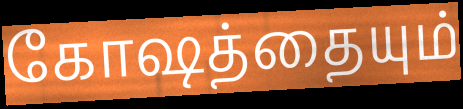
கோஷத்தையும்